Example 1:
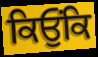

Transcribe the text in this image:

ਕਿਓੁਂਕਿ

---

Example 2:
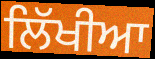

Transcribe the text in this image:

ਲਿੱਖੀਆ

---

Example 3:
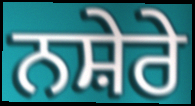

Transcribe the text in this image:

ਨਸ਼ੇਰੇ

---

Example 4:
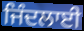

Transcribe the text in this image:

ਜਿੰਦਲਾਈ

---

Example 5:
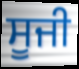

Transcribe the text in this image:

ਸੂਜੀ